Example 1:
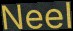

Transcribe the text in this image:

Neel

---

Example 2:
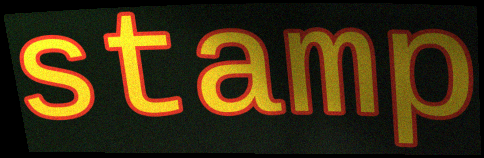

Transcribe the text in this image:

stamp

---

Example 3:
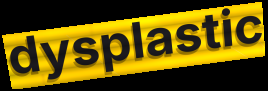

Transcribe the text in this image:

dysplastic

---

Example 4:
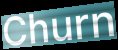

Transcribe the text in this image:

Churn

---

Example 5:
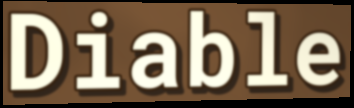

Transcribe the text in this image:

Diable